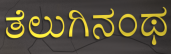
ತೆಲುಗಿನಂಥ